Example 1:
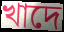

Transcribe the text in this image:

খাদে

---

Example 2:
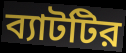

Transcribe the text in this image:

ব্যাটটির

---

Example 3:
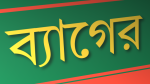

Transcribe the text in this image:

ব্যাগের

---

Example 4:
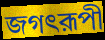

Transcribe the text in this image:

জগৎরূপী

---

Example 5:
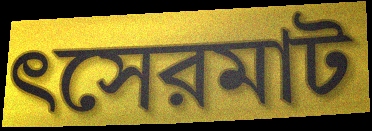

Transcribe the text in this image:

ৎসেরমাট